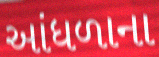
આંધળાના